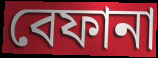
বেফানা